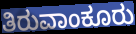
ತಿರುವಾಂಕೂರು